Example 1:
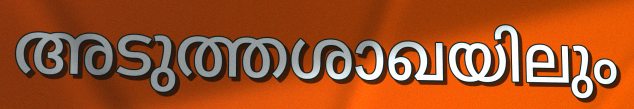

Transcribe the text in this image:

അടുത്തശാഖയിലും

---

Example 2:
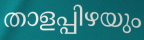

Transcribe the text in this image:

താളപ്പിഴയും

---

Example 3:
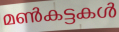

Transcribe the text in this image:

മൺകട്ടകൾ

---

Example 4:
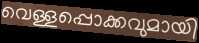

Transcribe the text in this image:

വെള്ളപ്പൊക്കവുമായി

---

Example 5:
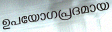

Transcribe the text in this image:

ഉപയോഗപ്രദമായ